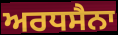
ਅਰਧਸੈਨਾ